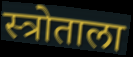
स्त्रोताला